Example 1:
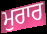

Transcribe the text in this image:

ਮੁਰਾਰ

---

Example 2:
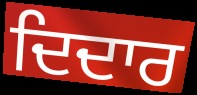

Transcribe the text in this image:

ਦਿਦਾਰ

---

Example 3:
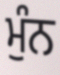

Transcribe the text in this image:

ਮੁੰਨ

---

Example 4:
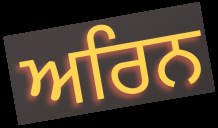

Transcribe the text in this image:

ਅਰਿਨ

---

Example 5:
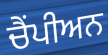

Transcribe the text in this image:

ਚੈਂਪੀਅਨ